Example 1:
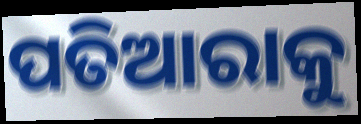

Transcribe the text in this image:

ପତିଆରାକୁ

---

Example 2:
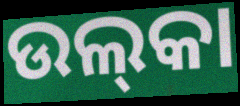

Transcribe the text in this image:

ଉଲ୍‍କା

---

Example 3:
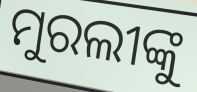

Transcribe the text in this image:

ମୁରଲୀଙ୍କୁ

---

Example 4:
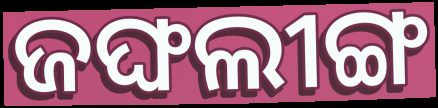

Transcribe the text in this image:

ଜଙ୍ଘଲୀଙ୍ଗ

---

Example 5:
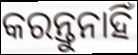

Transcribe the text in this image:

କରନ୍ତୁନାହିଁ